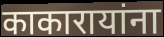
काकारायांना